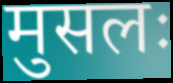
मुसलः